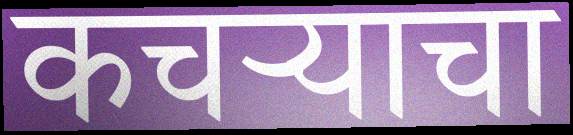
कचऱ्याचा